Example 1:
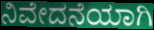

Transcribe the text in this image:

ನಿವೇದನೆಯಾಗಿ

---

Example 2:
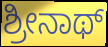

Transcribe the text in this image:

ಶ್ರೀನಾಥ್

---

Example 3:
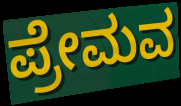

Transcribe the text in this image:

ಪ್ರೇಮವ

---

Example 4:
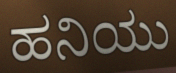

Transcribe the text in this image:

ಹನಿಯು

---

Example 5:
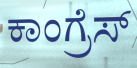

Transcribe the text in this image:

ಕಾಂಗ್ರೆಸ್